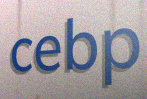
cebp